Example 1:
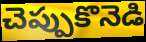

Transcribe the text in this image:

చెప్పుకొనెడి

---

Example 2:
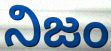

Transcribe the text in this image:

నిజం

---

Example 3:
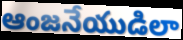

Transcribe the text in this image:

ఆంజనేయుడిలా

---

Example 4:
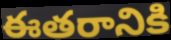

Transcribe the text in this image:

ఈతరానికి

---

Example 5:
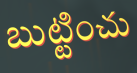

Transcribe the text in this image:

బుట్టించు